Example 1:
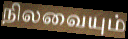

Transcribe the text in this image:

நிலவையும்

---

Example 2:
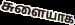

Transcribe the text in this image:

சுளையாக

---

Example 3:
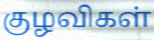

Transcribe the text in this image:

குழவிகள்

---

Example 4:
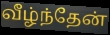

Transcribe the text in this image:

வீழ்ந்தேன்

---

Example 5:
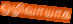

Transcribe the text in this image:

ஒழிவாயாக